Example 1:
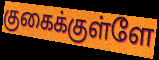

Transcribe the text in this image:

குகைக்குள்ளே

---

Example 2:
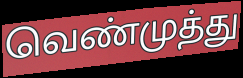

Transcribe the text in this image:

வெண்முத்து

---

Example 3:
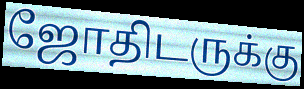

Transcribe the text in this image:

ஜோதிடருக்கு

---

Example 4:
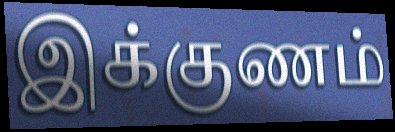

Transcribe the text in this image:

இக்குணம்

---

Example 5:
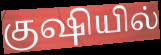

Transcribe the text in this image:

குஷியில்